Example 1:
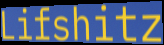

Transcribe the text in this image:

Lifshitz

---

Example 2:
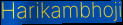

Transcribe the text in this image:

Harikambhoji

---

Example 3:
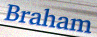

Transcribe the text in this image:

Braham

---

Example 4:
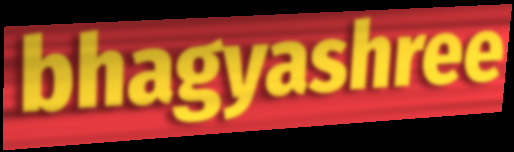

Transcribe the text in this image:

bhagyashree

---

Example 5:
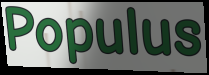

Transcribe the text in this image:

Populus